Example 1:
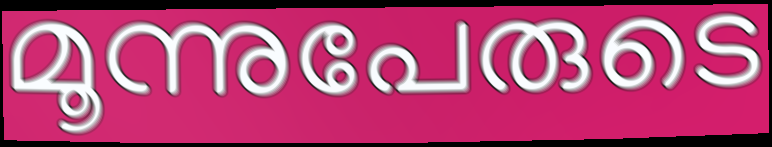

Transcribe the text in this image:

മൂന്നുപേരുടെ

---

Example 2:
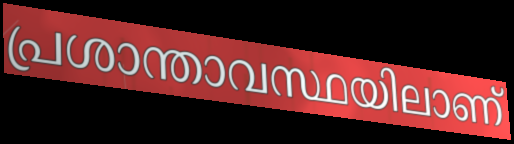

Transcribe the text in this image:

പ്രശാന്താവസ്ഥയിലാണ്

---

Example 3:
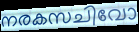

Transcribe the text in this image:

നരകസചിവോ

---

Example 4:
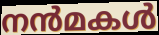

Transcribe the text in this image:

നൻമകൾ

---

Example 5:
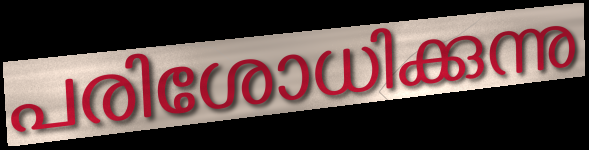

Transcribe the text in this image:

പരിശോധിക്കുന്നു